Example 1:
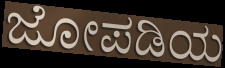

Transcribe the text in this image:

ಜೋಪಡಿಯ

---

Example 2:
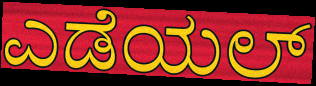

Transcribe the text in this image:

ಎಡೆಯಲ್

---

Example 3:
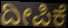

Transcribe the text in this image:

ದೀಪಿಕೆ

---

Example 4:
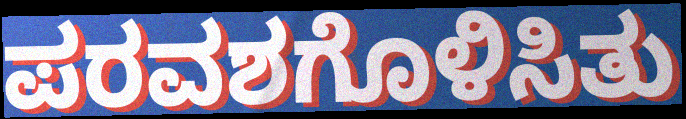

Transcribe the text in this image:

ಪರವಶಗೊಳಿಸಿತು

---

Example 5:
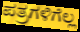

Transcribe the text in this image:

ಪತ್ರಗಳಿಗೆಲ್ಲ